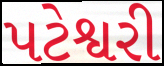
પટેશ્વરી